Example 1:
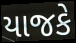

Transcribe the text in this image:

યાજકે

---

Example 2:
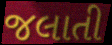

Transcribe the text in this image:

જલાતી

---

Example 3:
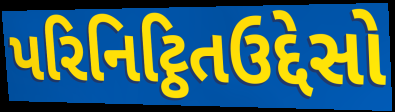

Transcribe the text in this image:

પરિનિટ્ઠિતઉદ્દેસો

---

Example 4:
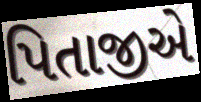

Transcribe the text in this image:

પિતાજીએ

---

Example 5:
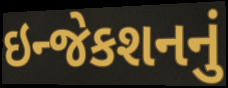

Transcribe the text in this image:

ઇન્જેકશનનું